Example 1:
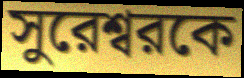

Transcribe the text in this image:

সুরেশ্বরকে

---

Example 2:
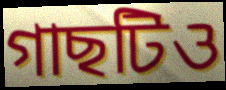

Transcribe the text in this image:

গাছটিও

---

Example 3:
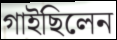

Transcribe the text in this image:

গাইছিলেন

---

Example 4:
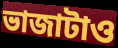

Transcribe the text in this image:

ভাজাটাও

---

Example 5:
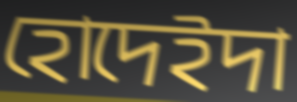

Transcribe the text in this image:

হোদেইদা